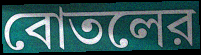
বোতলের